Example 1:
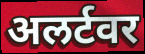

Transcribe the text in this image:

अलर्टवर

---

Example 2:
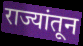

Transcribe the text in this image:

राज्यांतून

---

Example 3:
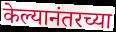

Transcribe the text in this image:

केल्यानंतरच्या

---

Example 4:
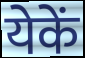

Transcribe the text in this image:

येकें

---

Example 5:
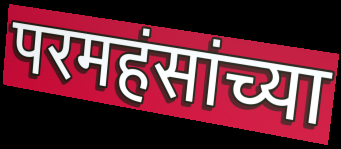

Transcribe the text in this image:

परमहंसांच्या